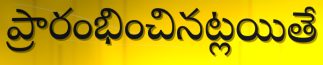
ప్రారంభించినట్లయితే